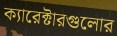
ক্যারেক্টারগুলোর